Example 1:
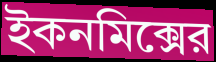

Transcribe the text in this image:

ইকনমিক্সের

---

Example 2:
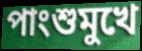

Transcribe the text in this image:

পাংশুমুখে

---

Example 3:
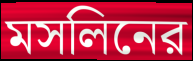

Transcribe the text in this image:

মসলিনের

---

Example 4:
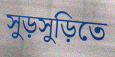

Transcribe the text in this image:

সুড়সুড়িতে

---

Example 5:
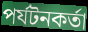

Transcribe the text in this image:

পর্যটনকর্তা